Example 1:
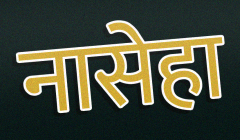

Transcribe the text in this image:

नासेहा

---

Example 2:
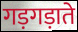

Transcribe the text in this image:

गड़गड़ाते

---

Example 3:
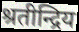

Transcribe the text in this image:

श्रतीन्द्रिय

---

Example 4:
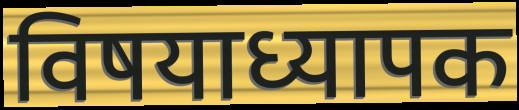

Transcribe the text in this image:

विषयाध्यापक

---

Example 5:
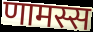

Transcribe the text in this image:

णामस्स